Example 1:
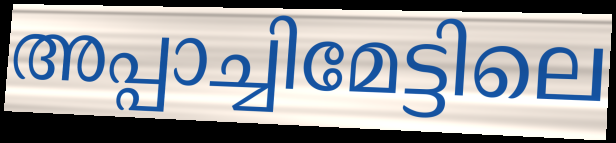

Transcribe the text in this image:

അപ്പാച്ചിമേട്ടിലെ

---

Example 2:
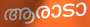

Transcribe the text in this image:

ആരാടാ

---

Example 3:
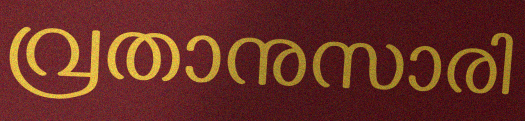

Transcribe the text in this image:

വ്രതാനുസാരി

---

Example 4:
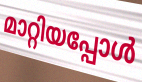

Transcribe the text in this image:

മാറ്റിയപ്പോൾ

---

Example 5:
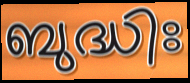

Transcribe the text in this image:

ബുദ്ധിഃ